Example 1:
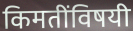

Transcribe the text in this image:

किमतींविषयी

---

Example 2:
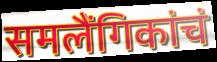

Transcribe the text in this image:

समलैंगिकांचं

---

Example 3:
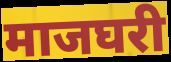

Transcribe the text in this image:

माजघरी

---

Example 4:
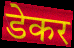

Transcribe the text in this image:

डेकर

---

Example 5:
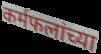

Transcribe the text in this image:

कर्मफलांच्या